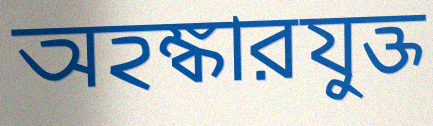
অহঙ্কারযুক্ত